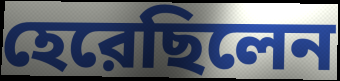
হেরেছিলেন